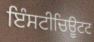
ਇੰਸਟੀਚਿਊਟਟ